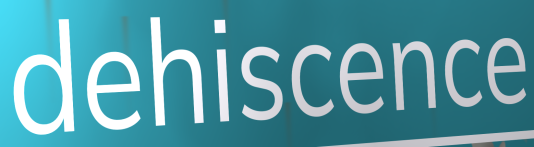
dehiscence